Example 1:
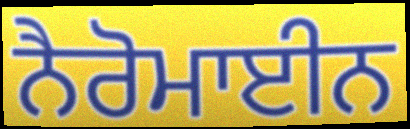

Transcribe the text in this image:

ਨੈਰੋਮਾਈਨ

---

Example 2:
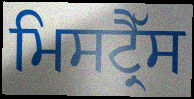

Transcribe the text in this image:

ਮਿਸਟ੍ਰੈੱਸ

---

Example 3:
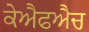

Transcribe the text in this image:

ਕੇਐਫਐਚ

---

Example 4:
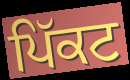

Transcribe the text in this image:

ਪਿੱਕਟ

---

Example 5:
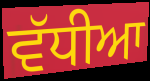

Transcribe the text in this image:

ਵੱਧੀਆ